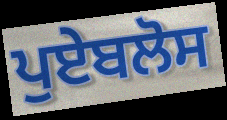
ਪੁਏਬਲੋਸ